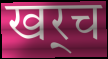
खर्च